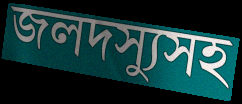
জলদস্যুসহ